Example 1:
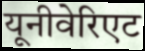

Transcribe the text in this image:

यूनीवेरिएट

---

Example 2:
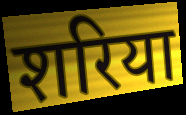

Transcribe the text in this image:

शरिया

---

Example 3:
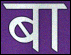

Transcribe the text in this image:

बा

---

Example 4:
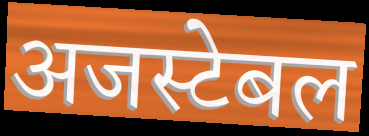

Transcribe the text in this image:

अजस्टेबल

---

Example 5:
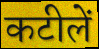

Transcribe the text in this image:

कटीलें